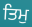
ਤਿਮੁ